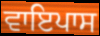
ਵਾਇਪਾਸ